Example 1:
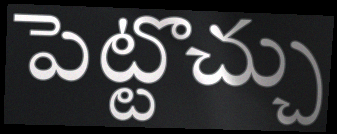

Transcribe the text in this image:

పెట్టొచ్చు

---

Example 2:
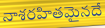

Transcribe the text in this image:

నాశరహితమైనదే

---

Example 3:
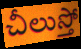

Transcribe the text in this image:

చీలుస్తో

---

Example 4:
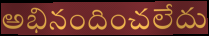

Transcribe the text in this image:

అభినందించలేదు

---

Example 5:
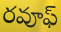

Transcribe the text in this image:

రవూఫ్